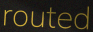
routed